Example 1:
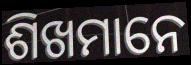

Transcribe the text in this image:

ଶିଖମାନେ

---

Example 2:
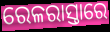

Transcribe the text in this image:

ରେଳରାସ୍ତାରେ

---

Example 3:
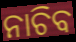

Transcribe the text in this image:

ନାଚିବ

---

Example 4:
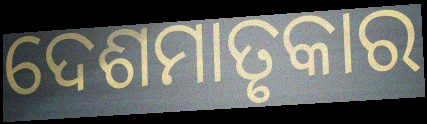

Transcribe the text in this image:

ଦେଶମାତୃକାର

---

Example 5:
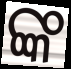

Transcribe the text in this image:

ଙ୍କ